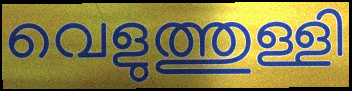
വെളുത്തുള്ളി